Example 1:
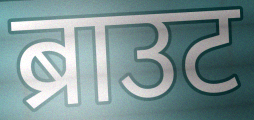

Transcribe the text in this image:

ब्राउट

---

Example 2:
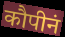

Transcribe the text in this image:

कौपीनं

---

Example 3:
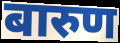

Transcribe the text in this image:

बारुण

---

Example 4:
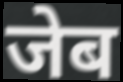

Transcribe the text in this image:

जेब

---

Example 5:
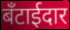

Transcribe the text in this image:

बँटाईदार